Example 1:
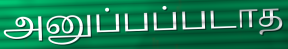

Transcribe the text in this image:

அனுப்பப்படாத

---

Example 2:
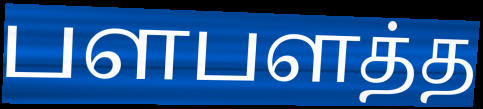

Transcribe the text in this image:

பளபளத்த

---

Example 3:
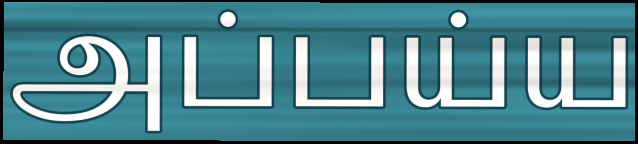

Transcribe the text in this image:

அப்பய்ய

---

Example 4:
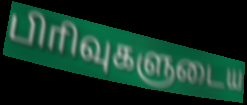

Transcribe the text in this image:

பிரிவுகளுடைய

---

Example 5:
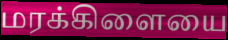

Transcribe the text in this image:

மரக்கிளையை